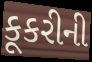
કૂકરીની